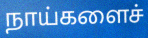
நாய்களைச்